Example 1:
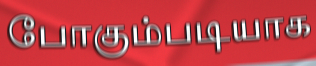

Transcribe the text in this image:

போகும்படியாக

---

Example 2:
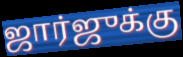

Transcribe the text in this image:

ஜார்ஜுக்கு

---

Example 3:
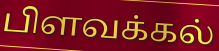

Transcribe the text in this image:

பிளவக்கல்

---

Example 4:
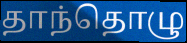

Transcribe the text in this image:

தாந்தொழு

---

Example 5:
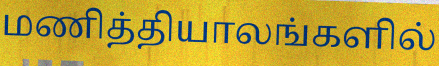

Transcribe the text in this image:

மணித்தியாலங்களில்